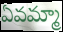
ఏవమ్మా